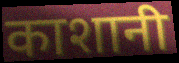
काशानी